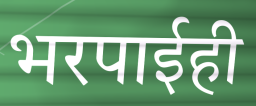
भरपाईही